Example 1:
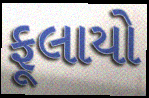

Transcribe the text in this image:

ફૂલાયો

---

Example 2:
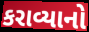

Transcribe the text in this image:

કરાવ્યાનો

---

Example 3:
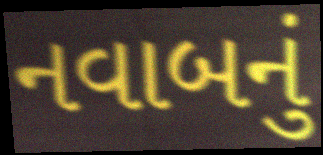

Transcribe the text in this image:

નવાબનું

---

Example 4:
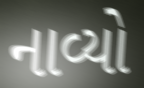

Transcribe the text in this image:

નાવ્યો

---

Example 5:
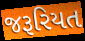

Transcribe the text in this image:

જરૂરિયત